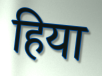
हिया